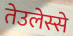
तेउलेस्से